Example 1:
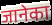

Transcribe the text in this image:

जानेका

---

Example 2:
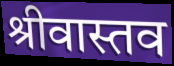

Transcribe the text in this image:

श्रीवास्‍तव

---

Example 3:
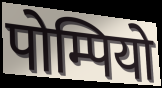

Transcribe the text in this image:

पोम्पियो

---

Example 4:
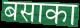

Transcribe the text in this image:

बसाका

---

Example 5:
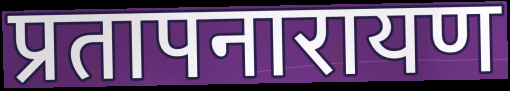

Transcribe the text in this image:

प्रतापनारायण